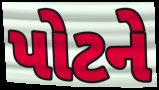
પોટને